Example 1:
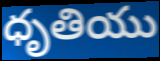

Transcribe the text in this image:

ధృతియు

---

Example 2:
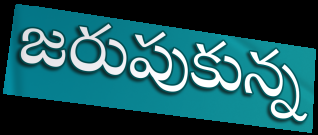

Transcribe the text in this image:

జరుపుకున్న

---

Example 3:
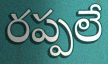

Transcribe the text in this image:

రప్పలే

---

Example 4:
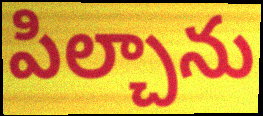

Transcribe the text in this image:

పిల్చాను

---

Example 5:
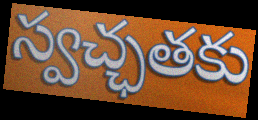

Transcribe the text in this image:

స్వచ్ఛతకు